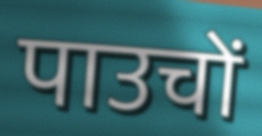
पाउचों